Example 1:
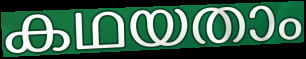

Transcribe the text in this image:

കഥയതാം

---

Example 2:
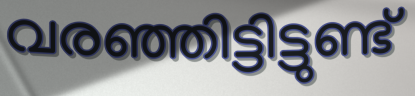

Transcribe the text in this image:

വരഞ്ഞിട്ടിട്ടുണ്ട്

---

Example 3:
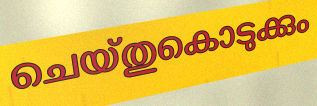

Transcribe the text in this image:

ചെയ്തുകൊടുക്കും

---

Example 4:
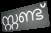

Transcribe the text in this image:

സ്റ്റണ്ട്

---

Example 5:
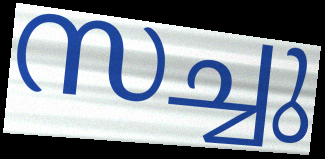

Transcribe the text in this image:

സച്ചു